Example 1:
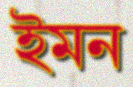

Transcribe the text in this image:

ইমন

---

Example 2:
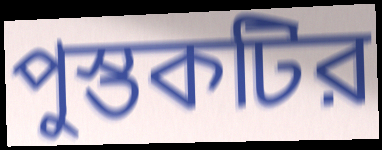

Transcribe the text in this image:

পুস্তকটির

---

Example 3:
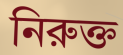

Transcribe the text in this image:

নিরুক্ত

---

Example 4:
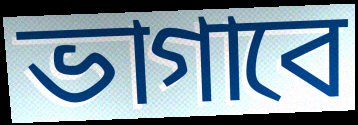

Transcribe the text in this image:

ভাগাবে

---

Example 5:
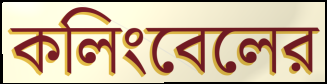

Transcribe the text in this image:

কলিংবেলের